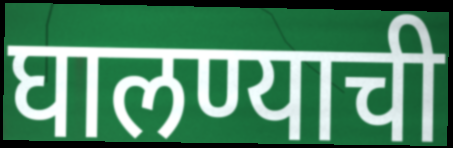
घालण्याची